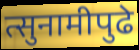
त्सुनामीपुढे